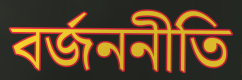
বর্জননীতি